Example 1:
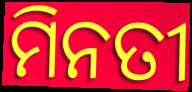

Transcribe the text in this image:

ମିନତୀ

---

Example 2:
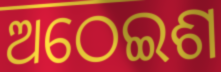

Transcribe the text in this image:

ଅଠେଇଶ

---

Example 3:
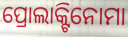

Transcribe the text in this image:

ପ୍ରୋଲାକ୍ଟିନୋମା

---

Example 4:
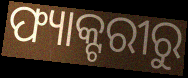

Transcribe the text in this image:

ଫ୍ୟାକ୍ଟରୀରୁ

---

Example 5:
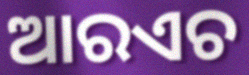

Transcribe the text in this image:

ଆରଏଚ